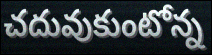
చదువుకుంటోన్న